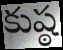
కుష్ఠ